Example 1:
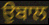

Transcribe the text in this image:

ਉਬਾਲ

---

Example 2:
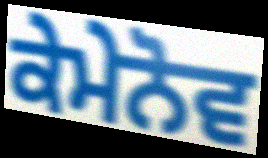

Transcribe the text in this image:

ਕੇਮੇਨੋਵ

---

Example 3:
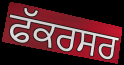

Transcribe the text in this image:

ਫੱਕਰਸਰ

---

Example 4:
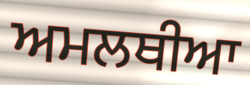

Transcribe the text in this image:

ਅਮਲਥੀਆ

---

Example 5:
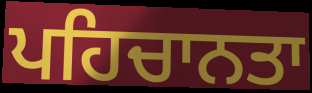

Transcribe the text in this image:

ਪਹਿਚਾਨਤਾ